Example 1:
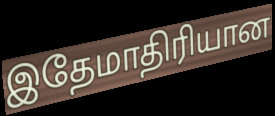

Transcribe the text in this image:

இதேமாதிரியான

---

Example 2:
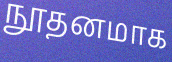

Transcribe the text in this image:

நூதனமாக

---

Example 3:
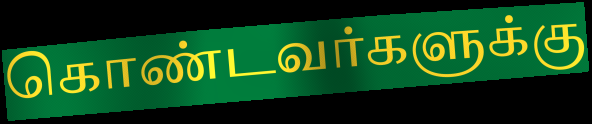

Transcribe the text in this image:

கொண்டவர்களுக்கு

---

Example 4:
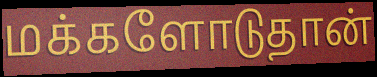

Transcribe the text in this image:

மக்களோடுதான்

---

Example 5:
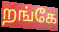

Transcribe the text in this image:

றங்கே